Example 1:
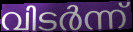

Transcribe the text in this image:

വിടർന്ന്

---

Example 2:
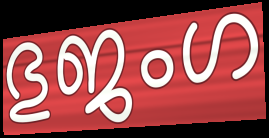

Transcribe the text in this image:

ഭുജംഗ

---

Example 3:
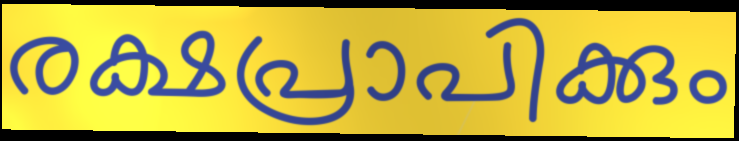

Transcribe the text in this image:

രക്ഷപ്രാപിക്കും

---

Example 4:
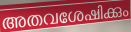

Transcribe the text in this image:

അതവശേഷിക്കും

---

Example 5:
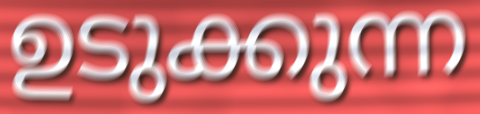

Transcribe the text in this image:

ഉടുക്കുന്ന